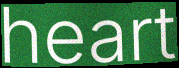
heart